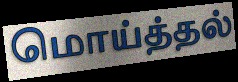
மொய்த்தல்